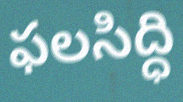
ఫలసిద్ధి